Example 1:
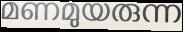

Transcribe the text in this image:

മണമുയരുന്ന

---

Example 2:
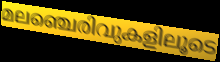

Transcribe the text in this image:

മലഞ്ചെരിവുകളിലൂടെ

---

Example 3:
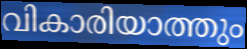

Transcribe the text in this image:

വികാരിയാത്തും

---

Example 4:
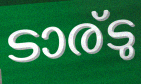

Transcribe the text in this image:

ടാര്ടു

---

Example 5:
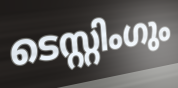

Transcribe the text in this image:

ടെസ്റ്റിംഗും